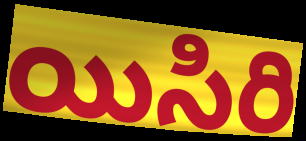
యిసిరి